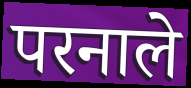
परनाले